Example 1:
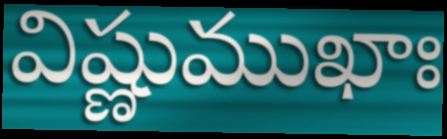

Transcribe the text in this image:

విష్ణుముఖాః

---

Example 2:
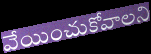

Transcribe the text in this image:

వేయించుకోవాలని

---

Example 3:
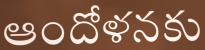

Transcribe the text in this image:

ఆందోళనకు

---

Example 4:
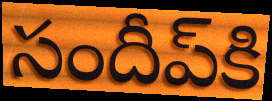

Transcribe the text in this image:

సందీప్‌కి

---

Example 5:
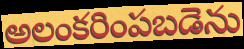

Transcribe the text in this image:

అలంకరింపబడెను